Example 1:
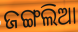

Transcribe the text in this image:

ଜଙ୍ଗଲିଆ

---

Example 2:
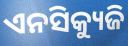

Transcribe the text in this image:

ଏନସିକ୍ୟୁଜି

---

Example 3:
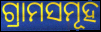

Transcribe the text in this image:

ଗ୍ରାମସମୂହ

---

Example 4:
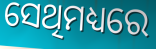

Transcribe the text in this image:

ସେଥିମଧ୍ୟରେ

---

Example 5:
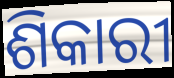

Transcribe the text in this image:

ଶିକାରୀ